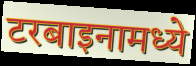
टरबाइनामध्ये